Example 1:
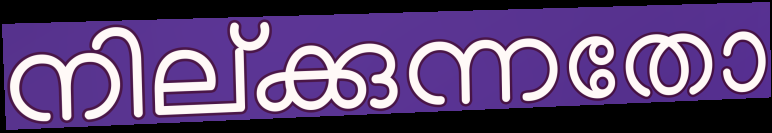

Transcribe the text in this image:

നില്ക്കുന്നതോ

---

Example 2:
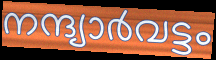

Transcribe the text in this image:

നന്ദ്യാർവട്ടം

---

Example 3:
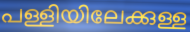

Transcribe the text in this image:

പള്ളിയിലേക്കുള്ള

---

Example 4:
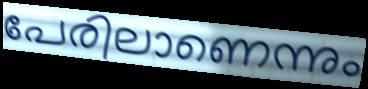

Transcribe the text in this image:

പേരിലാണെന്നും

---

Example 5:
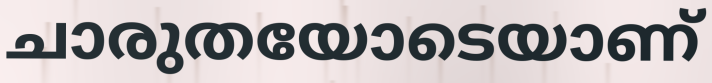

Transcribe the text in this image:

ചാരുതയോടെയാണ്